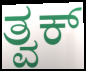
ತ್ವಕ್